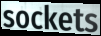
sockets